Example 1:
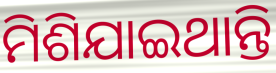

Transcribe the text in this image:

ମିଶିଯାଇଥାନ୍ତି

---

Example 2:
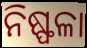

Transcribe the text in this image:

ନିଷ୍ଫଳା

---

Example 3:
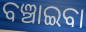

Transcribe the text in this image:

ବଞ୍ଚାଇବା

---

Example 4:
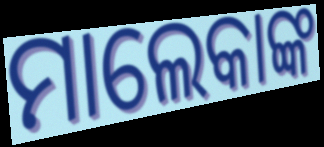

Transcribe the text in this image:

ମାଲେକାଙ୍କ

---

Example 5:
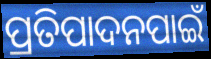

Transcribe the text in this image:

ପ୍ରତିପାଦନପାଇଁ